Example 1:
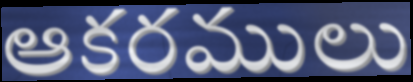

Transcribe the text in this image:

ఆకరములు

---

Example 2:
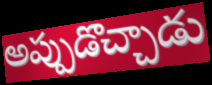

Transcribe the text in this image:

అప్పుడొచ్చాడు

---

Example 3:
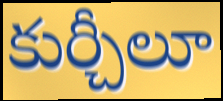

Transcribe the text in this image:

కుర్చీలూ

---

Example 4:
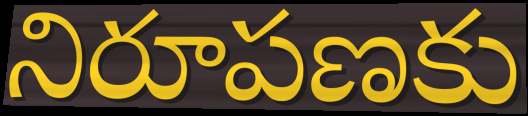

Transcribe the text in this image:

నిరూపణకు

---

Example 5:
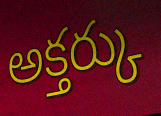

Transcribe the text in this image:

అక్తర్కు